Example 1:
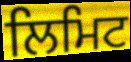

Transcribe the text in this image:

ਲਿਮਿਟ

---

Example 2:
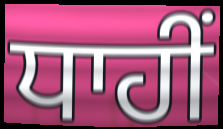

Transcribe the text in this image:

ਧਾਹੀਂ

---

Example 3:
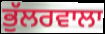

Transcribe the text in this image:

ਭੁੱਲਰਵਾਲਾ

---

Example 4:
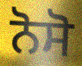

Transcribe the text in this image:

ਨੋਸੋ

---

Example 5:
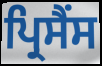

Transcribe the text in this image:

ਪ੍ਰਿਸੈਂਸ